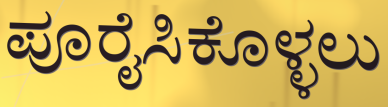
ಪೂರೈಸಿಕೊಳ್ಳಲು